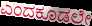
ಎಂದಕೂಡಲೇ